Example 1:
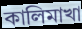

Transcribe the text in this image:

কালিমাখা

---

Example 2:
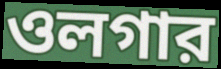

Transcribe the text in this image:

ওলগার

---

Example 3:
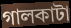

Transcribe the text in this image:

গালকাটা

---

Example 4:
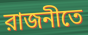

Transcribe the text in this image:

রাজনীতে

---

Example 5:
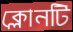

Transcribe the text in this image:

ক্লোনটি